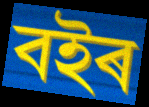
বইৰ